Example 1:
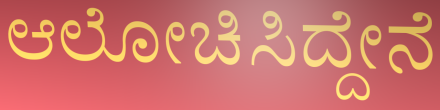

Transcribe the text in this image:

ಆಲೋಚಿಸಿದ್ದೇನೆ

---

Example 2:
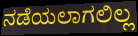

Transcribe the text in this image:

ನಡೆಯಲಾಗಲಿಲ್ಲ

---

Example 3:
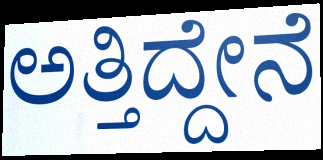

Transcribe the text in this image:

ಅತ್ತಿದ್ದೇನೆ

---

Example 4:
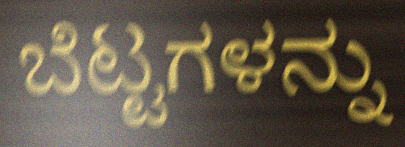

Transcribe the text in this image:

ಬೆಟ್ಟಗಳನ್ನು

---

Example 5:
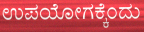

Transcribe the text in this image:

ಉಪಯೋಗಕ್ಕೆಂದು